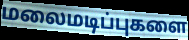
மலைமடிப்புகளை